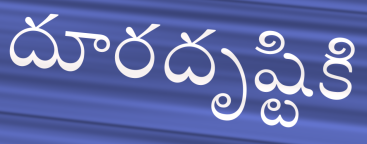
దూరదృష్టికి